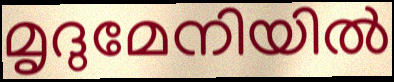
മൃദുമേനിയിൽ